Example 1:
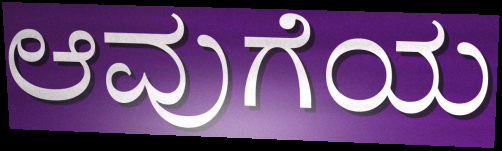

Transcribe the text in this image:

ಆವುಗೆಯ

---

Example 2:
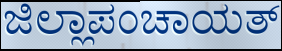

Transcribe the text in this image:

ಜಿಲ್ಲಾಪಂಚಾಯತ್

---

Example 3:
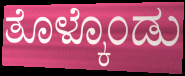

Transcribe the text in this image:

ತೊಳ್ಕೊಂಡು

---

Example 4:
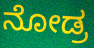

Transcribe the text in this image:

ನೋಡ್ರ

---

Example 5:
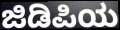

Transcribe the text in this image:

ಜಿಡಿಪಿಯ